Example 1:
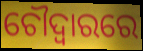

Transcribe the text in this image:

ଚୌଦ୍ୱାରରେ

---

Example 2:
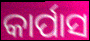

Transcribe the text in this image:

କାର୍ପାସ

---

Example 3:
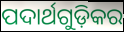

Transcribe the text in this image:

ପଦାର୍ଥଗୁଡ଼ିକର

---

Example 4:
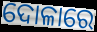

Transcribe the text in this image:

ଦୋଳାରେ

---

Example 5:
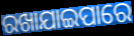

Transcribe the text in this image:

ରଖାଯାଇପାରେ